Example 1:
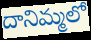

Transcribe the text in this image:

దానిమ్మలో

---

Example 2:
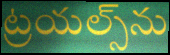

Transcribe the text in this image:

ట్రయల్స్‌ను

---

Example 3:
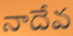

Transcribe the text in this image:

నాదేవ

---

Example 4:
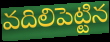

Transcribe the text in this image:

వదిలిపెట్టిన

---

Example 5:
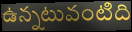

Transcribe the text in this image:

ఉన్నటువంటిది